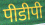
पीडीपी